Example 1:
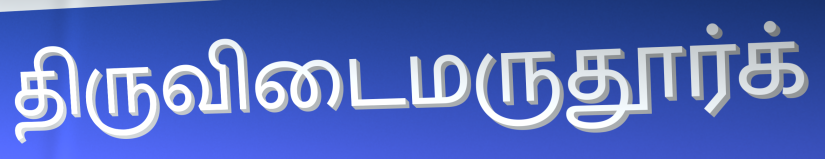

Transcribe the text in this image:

திருவிடைமருதூர்க்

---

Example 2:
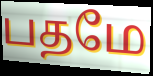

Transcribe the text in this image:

பதமே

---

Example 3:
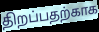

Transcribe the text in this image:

திறப்பதற்காக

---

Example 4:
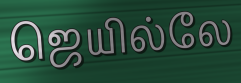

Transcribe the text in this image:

ஜெயில்லே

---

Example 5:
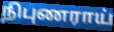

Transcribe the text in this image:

நிபுணராய்